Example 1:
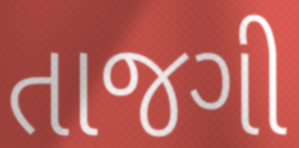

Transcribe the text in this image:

તાજગી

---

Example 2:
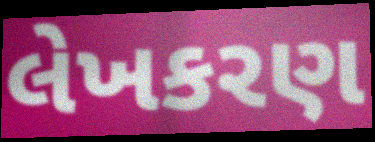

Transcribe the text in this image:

લેખકરણ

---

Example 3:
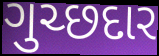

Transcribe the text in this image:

ગુચ્છદાર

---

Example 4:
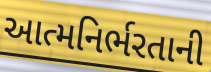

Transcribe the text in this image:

આત્મનિર્ભરતાની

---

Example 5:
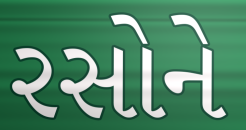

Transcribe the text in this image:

રસોને